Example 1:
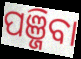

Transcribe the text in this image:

ପଞ୍ଜିବା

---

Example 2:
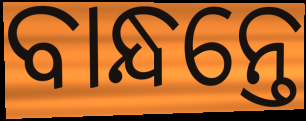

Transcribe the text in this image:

ବାନ୍ଧନ୍ତେ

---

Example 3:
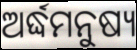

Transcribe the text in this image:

ଅର୍ଦ୍ଧମନୁଷ୍ୟ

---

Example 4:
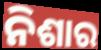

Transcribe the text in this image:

ନିଶାର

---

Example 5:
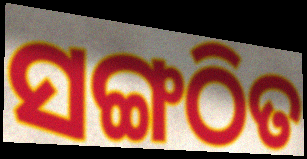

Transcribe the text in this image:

ସଙ୍ଗଠିତ